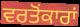
ਵਰਤੋਂਕਾਰਾਂ